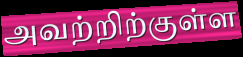
அவற்றிற்குள்ள